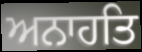
ਅਨਾਹਤਿ